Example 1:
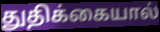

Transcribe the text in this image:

துதிக்கையால்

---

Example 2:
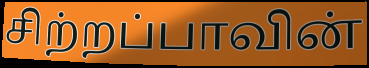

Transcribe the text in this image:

சிற்றப்பாவின்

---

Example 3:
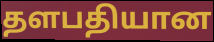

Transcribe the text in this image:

தளபதியான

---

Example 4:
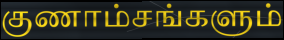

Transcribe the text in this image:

குணாம்சங்களும்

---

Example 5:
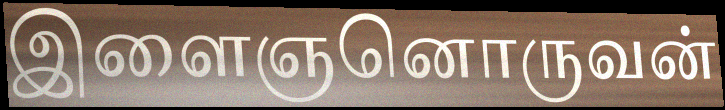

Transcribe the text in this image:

இளைஞனொருவன்